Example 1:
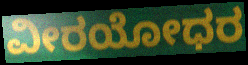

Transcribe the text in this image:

ವೀರಯೋಧರ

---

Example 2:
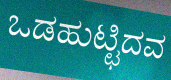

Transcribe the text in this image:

ಒಡಹುಟ್ಟಿದವ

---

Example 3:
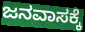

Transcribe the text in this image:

ಜನವಾಸಕ್ಕೆ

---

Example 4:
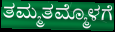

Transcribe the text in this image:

ತಮ್ಮತಮ್ಮೊಳಗೆ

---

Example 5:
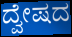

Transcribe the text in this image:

ದ್ವೇಷದ